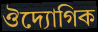
ঔদ্যোগিক